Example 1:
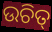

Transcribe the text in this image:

ଉଚିତ୍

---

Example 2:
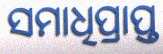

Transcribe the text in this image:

ସମାଧିପ୍ରାପ୍ତ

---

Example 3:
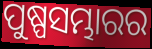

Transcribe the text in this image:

ପୁଷ୍ପସମ୍ଭାରର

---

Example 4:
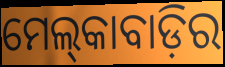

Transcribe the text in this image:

ମେଲ୍‍କାବାଡ଼ିର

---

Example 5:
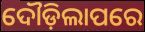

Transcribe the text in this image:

ଦୌଡ଼ିଲାପରେ